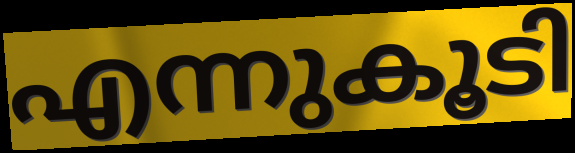
എന്നുകൂടി